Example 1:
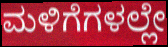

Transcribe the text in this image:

ಮಳಿಗೆಗಳಲ್ಲೇ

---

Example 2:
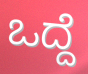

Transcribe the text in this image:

ಒದ್ದೆ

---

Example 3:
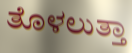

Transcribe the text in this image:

ತೊಳಲುತ್ತಾ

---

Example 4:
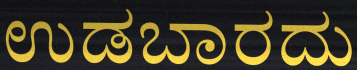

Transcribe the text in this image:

ಉಡಬಾರದು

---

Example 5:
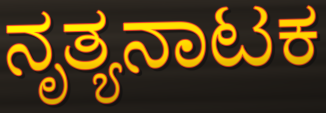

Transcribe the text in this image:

ನೃತ್ಯನಾಟಕ